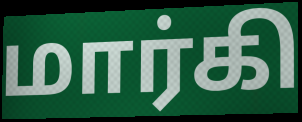
மார்கி